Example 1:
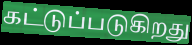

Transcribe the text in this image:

கட்டுப்படுகிறது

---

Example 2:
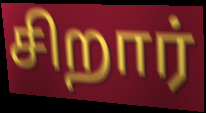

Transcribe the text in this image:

சிறார்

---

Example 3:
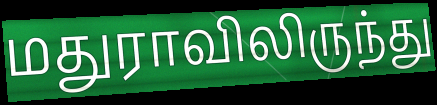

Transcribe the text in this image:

மதுராவிலிருந்து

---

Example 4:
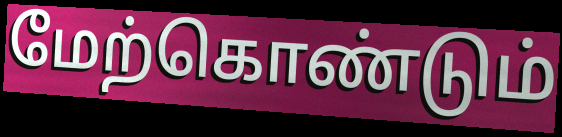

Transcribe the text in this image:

மேற்கொண்டும்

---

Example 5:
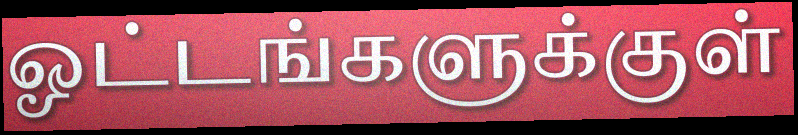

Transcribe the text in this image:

ஓட்டங்களுக்குள்